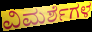
ವಿಮರ್ಶೆಗಳ